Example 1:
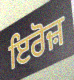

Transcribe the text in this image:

ਇਰੋਜ਼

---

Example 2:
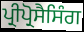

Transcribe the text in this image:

ਪ੍ਰੀਪ੍ਰੋਸੈਸਿੰਗ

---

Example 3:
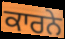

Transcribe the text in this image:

ਕਾਰਨੇ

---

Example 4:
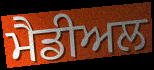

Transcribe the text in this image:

ਮੈਡੀਅਲ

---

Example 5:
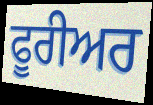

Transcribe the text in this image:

ਫੂਰੀਅਰ